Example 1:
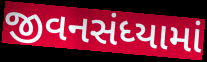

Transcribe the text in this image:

જીવનસંધ્યામાં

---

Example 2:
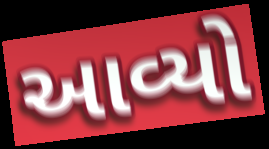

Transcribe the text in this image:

આવ્યો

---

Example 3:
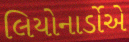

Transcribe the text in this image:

લિયોનાર્ડોએ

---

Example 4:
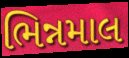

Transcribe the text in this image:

ભિન્નમાલ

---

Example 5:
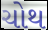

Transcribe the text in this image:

ચોથ